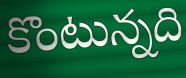
కొంటున్నది